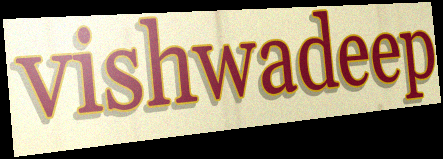
vishwadeep